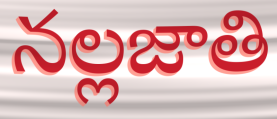
నల్లజాతి